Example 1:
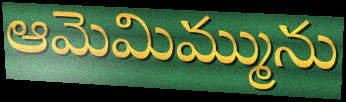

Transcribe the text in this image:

ఆమెమిమ్మును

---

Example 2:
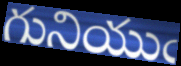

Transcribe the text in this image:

గునియుఁ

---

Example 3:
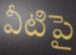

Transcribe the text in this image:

వీటిపై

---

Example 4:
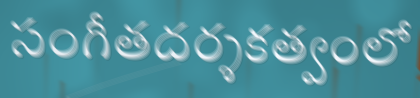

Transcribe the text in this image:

సంగీతదర్శకత్వంలో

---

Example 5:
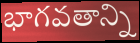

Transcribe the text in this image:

భాగవతాన్ని